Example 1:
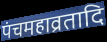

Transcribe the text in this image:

पंचमहाव्रतादि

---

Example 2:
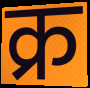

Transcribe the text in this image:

क्र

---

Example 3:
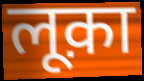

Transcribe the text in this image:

लूक़ा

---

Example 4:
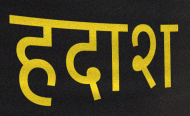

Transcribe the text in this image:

हदाश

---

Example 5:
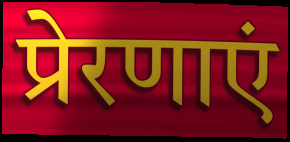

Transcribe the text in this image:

प्रेरणाएं